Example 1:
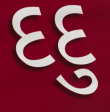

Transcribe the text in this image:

દદુ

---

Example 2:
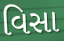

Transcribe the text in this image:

વિસા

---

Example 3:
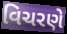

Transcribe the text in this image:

વિચરણે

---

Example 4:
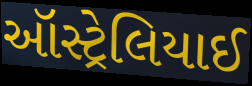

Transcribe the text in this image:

ઑસ્ટ્રેલિયાઈ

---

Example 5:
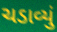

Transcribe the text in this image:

ચડાવ્યું